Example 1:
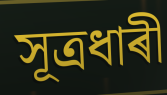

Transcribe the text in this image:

সূত্ৰধাৰী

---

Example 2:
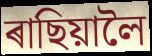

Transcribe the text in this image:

ৰাছিয়ালৈ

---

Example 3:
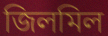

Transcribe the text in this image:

জিলমিল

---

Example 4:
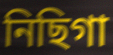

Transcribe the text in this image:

নিছিগা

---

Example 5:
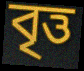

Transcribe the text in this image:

বৃত্ত